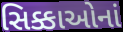
સિક્કાઓનાં